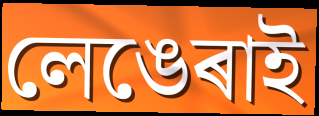
লেঙেৰাই